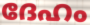
ദേഹം